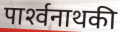
पार्श्वनाथकी